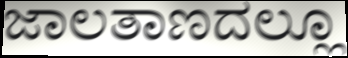
ಜಾಲತಾಣದಲ್ಲೂ